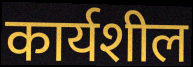
कार्यशील